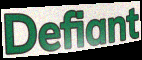
Defiant